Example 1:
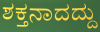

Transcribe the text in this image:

ಶಕ್ತನಾದದ್ದು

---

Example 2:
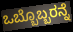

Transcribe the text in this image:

ಒಬ್ಬೊಬ್ಬರನ್ನೆ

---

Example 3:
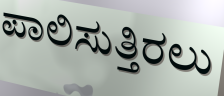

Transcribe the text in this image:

ಪಾಲಿಸುತ್ತಿರಲು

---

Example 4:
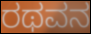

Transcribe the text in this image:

ರಥವನ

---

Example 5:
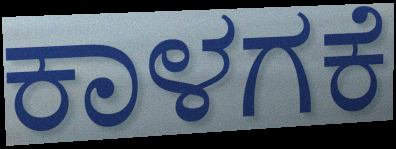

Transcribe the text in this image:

ಕಾಳಗಕೆ